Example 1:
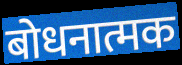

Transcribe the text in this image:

बोधनात्मक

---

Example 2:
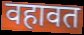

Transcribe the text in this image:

वहावत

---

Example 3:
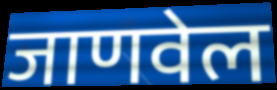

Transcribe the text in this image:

जाणवेल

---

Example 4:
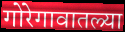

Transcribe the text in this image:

गोरेगावातल्या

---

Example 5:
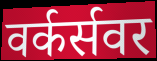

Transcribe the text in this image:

वर्कर्सवर